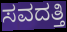
ಸವದತ್ತಿ